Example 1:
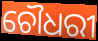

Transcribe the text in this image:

ଚୌଧରୀ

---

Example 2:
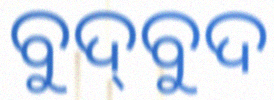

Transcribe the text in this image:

ବୁଦ୍‍ବୁଦ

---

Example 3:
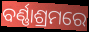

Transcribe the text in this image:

ବର୍ଣ୍ଣାଶ୍ରମରେ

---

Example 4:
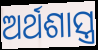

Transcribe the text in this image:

ଅର୍ଥଶାସ୍ତ୍ର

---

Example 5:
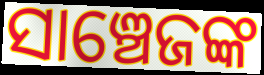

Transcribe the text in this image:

ସାଞ୍ଚେଜଙ୍କ